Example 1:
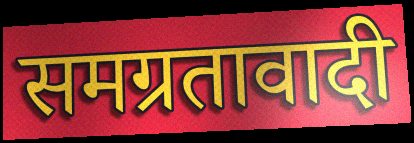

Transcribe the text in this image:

समग्रतावादी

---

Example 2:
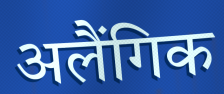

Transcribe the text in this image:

अलैंगिक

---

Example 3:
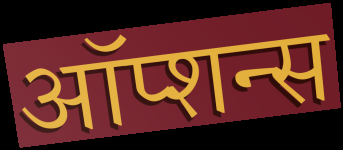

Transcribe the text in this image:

ऑप्शन्स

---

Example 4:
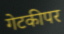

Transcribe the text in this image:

गेटकीपर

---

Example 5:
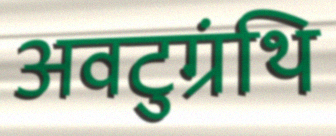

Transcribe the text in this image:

अवटुग्रंथि